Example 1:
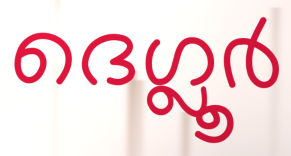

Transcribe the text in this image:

ദെഗ്ലൂർ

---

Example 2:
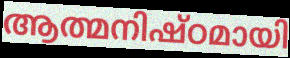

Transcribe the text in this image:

ആത്മനിഷ്ഠമായി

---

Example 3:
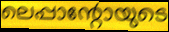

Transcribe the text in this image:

ലെപ്പാന്റോയുടെ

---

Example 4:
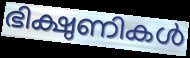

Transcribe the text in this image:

ഭിക്ഷുണികൾ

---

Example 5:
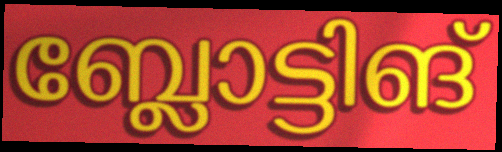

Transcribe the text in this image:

ബ്ലോട്ടിങ്